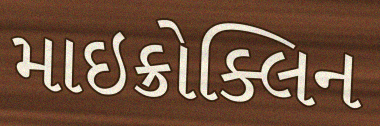
માઇક્રોક્લિન